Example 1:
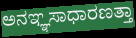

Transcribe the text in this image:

ಅನಞ್ಞಸಾಧಾರಣತ್ತಾ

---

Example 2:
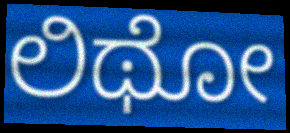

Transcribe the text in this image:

ಲಿಥೋ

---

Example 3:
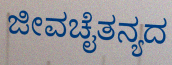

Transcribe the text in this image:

ಜೀವಚೈತನ್ಯದ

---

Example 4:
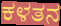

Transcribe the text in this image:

ಕಳತನ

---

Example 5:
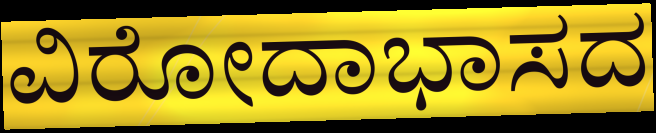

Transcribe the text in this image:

ವಿರೋದಾಭಾಸದ